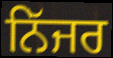
ਨਿੱਜਰ